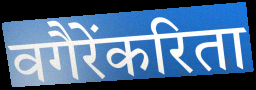
वगैरेंकरिता